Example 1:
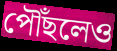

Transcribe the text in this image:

পৌঁছলেও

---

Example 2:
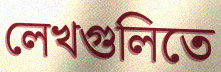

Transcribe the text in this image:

লেখগুলিতে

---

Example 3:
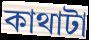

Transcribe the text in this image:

কাথাটা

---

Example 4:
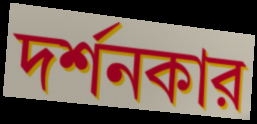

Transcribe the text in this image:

দর্শনকার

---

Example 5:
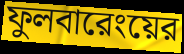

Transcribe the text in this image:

ফুলবারেংয়ের